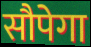
सौपेगा